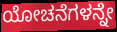
ಯೋಚನೆಗಳನ್ನೇ